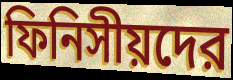
ফিনিসীয়দের